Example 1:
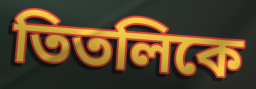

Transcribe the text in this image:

তিতলিকে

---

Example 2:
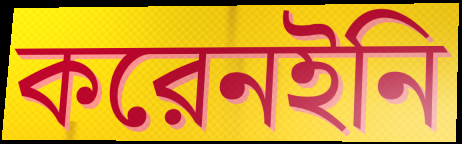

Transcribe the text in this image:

করেনইনি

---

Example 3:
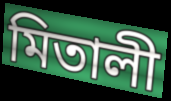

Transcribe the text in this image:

মিতালী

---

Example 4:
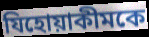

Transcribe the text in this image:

যিহোয়াকীমকে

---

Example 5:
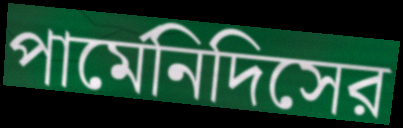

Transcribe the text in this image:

পার্মেনিদিসের